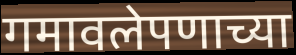
गमावलेपणाच्या